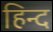
हिन्द